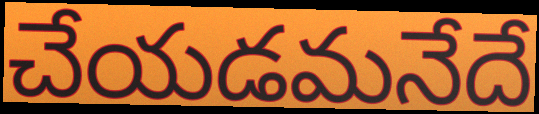
చేయడమనేదే